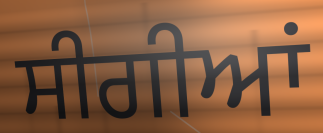
ਸੀਗੀਆਂ